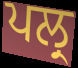
ਪਲ੍ਰ